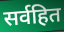
सर्वहित